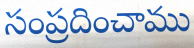
సంప్రదించాము